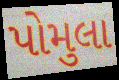
પોમુલા